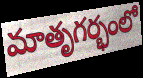
మాతృగర్భంలో